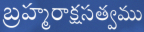
బ్రహ్మరాక్షసత్వము